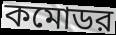
কমোডর